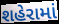
શહેરામાં